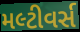
મલ્ટીવર્સ